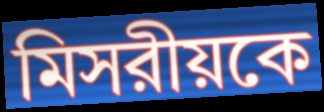
মিসরীয়কে